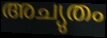
അച്യുതം